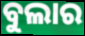
ବୁଲାର